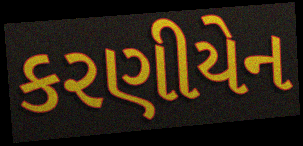
કરણીયેન